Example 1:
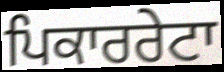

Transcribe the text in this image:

ਪਿਕਾਰਰੇਟਾ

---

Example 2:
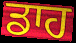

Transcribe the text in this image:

ਡਾਹ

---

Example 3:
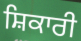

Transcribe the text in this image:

ਸ਼ਿਕਾਰੀ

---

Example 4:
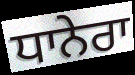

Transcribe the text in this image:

ਧਾਨੇਰਾ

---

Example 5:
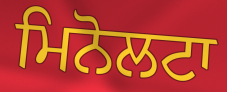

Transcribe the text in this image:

ਮਿਨੋਲਟਾ